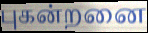
புகன்றனை